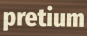
pretium